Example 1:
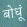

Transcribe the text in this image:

बोधूं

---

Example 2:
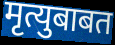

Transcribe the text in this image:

मृत्युबाबत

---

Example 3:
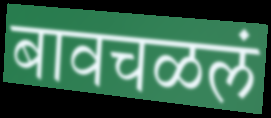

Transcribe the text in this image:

बावचळलं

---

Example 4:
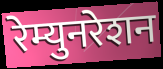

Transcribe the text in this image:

रेम्युनरेशन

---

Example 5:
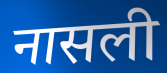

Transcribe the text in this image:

नासली